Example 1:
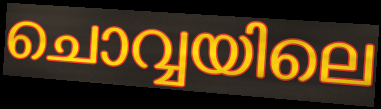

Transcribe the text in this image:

ചൊവ്വയിലെ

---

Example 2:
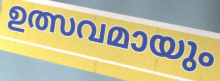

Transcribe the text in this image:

ഉത്സവമായും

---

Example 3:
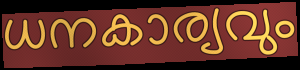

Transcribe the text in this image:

ധനകാര്യവും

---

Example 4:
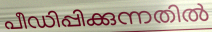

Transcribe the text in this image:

പീഡിപ്പിക്കുന്നതിൽ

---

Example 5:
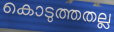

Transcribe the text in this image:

കൊടുത്തതല്ല